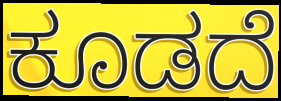
ಕೂಡದೆ